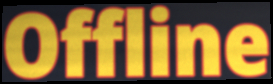
Offline